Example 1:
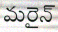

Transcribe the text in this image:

మరైన్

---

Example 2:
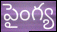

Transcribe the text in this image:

పైంగ్య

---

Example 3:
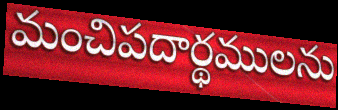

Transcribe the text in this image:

మంచిపదార్థములను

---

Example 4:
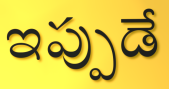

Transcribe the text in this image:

ఇప్పుడే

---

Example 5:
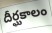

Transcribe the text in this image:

దీర్ఘకాలం